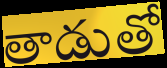
తాడుతో